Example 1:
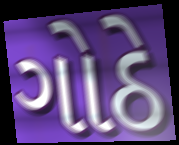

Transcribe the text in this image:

ગોઠે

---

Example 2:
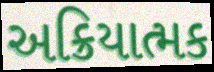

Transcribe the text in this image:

અક્રિયાત્મક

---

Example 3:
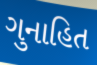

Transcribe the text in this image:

ગુનાહિત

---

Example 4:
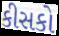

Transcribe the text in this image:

કીસકો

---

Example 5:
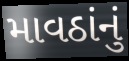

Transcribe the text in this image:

માવઠાંનું